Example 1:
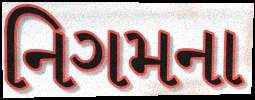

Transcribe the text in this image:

નિગમના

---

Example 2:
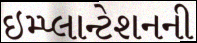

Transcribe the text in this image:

ઇમ્પ્લાન્ટેશનની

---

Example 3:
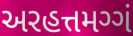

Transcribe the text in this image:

અરહત્તમગ્ગં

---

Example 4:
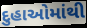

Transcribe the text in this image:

દુહાઓમાંથી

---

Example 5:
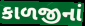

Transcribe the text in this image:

કાળજીનાં